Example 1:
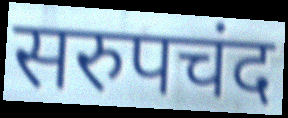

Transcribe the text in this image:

सरुपचंद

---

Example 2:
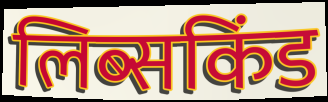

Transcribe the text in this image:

लिब्सकिंड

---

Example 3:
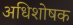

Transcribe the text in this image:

अधिशोषक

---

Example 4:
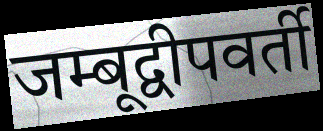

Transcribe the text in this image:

जम्बूद्वीपवर्ती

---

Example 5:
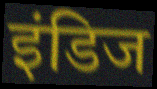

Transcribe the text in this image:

इंडिज